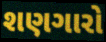
શણગારો